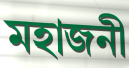
মহাজনী